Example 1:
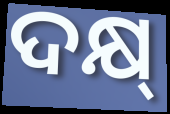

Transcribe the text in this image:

ଦକ୍ଷ୍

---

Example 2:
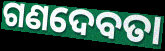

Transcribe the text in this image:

ଗଣଦେବତା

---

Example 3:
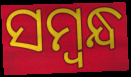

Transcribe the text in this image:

ସମ୍ବନ୍ଧ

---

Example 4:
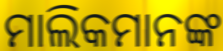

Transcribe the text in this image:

ମାଲିକମାନଙ୍କ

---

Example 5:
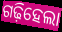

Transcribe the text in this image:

ଗଢ଼ିହେଲା